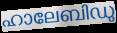
ഹാലേബിഡു